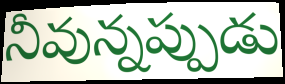
నీవున్నప్పుడు